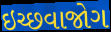
ઇચ્છવાજોગ